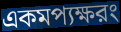
একমপ্যক্ষরং